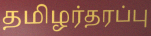
தமிழர்தரப்பு